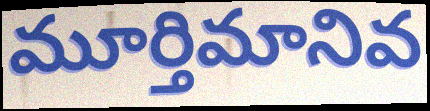
మూర్తిమానివ